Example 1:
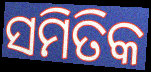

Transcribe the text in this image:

ସମିତିକ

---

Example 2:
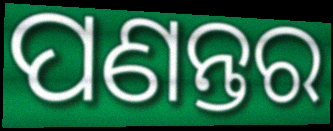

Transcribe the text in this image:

ପଣନ୍ତର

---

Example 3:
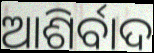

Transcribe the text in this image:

ଆଶିର୍ବାଦ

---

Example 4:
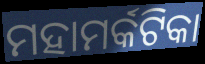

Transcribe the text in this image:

ମହାମର୍କଟିକା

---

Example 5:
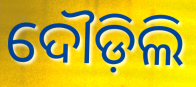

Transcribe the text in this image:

ଦୌଡ଼ିଲି